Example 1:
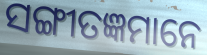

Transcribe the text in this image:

ସଙ୍ଗୀତଜ୍ଞମାନେ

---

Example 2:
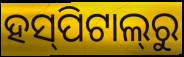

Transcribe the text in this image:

ହସ୍‌ପିଟାଲ୍‌ରୁ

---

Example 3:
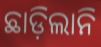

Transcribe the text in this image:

ଛାଡ଼ିଲାନି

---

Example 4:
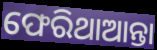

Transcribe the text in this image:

ଫେରିଥାଆନ୍ତା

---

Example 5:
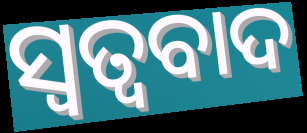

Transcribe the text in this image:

ସ୍ୱତ୍ୱବାଦ